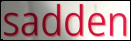
sadden